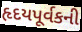
હૃદયપૂર્વકની